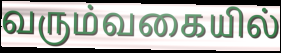
வரும்வகையில்